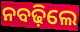
ନବଢ଼ିଲେ